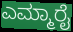
ಎಮ್ಮಾರೈ